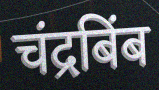
चंद्रबिंब